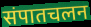
संपातचलन